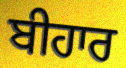
ਬੀਹਾਰ